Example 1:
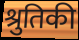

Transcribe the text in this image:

श्रुतिकी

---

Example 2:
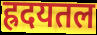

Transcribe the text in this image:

ह्रदयतल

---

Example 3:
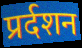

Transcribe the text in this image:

प्रर्दशन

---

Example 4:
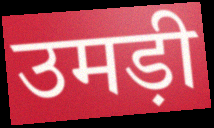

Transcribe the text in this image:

उमड़ी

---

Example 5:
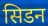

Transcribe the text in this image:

सिडन